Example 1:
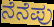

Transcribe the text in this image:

ನೆನೆಪು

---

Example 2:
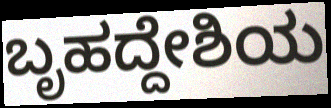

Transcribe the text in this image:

ಬೃಹದ್ದೇಶಿಯ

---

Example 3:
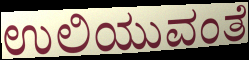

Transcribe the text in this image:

ಉಲಿಯುವಂತೆ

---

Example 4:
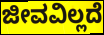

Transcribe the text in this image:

ಜೀವವಿಲ್ಲದೆ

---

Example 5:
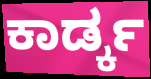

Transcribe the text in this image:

ಕಾರ್ಡ್ಕ